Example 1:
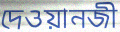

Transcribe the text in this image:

দেওয়ানজী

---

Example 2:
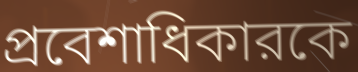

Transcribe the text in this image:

প্রবেশাধিকারকে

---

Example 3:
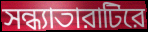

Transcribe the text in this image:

সন্ধ্যাতারাটিরে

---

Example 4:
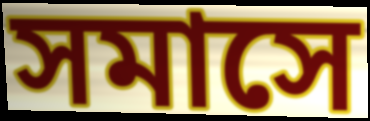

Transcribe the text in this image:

সমাসে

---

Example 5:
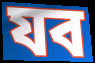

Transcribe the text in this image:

যব